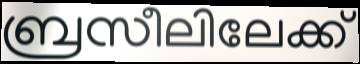
ബ്രസീലിലേക്ക്